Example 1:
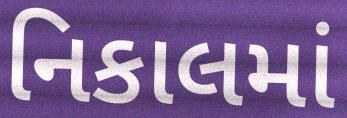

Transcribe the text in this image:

નિકાલમાં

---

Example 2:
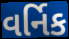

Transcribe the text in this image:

વર્નિક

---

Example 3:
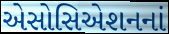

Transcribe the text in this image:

એસોસિએશનનાં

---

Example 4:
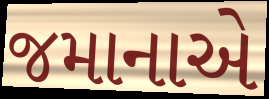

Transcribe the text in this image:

જમાનાએ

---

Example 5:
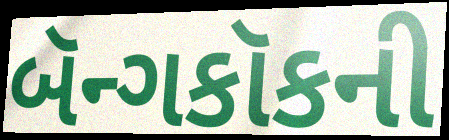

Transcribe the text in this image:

બૅન્ગકૉકની